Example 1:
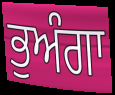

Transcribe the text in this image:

ਭੁਅੰਗਾ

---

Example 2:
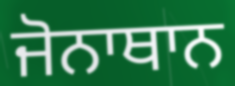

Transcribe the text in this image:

ਜੋਨਾਥਾਨ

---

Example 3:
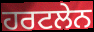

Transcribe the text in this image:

ਹਰਟਲੇਨ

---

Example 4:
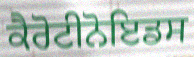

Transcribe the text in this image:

ਕੈਰੋਟੀਨੋਇਡਸ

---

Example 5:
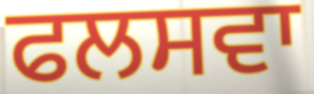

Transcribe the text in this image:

ਫਲਸਵਾ